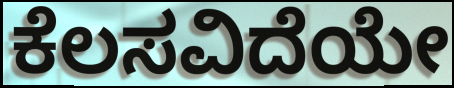
ಕೆಲಸವಿದೆಯೇ